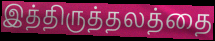
இத்திருத்தலத்தை